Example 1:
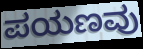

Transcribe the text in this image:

ಪಯಣವು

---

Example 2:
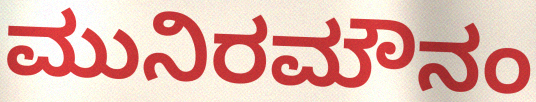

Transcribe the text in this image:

ಮುನಿರಮೌನಂ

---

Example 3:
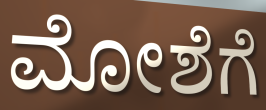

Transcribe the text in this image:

ಮೋಶೆಗೆ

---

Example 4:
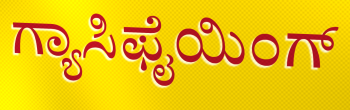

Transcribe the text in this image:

ಗ್ಯಾಸಿಫೈಯಿಂಗ್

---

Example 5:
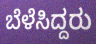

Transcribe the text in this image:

ಬೆಳೆಸಿದ್ದರು